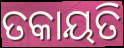
ତକାୟତି